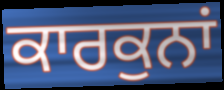
ਕਾਰਕੁਨਾਂ